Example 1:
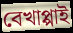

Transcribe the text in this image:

বেখাপ্পাই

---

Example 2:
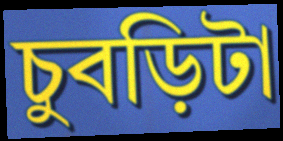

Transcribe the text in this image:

চুবড়িটা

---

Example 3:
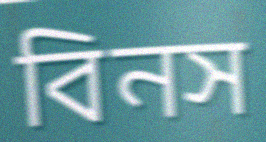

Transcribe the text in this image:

বিনস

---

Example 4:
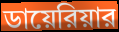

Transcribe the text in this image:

ডায়েরিয়ার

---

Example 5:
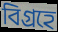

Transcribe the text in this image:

বিগ্রহে